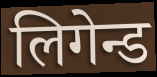
लिगेन्ड